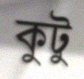
কুটু